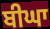
ਬੀਘਾ